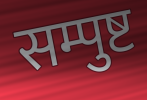
सम्पुष्ट